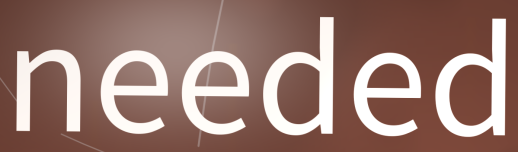
needed